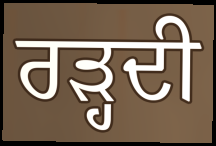
ਰੜ੍ਹਦੀ